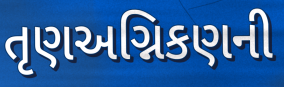
તૃણઅગ્નિકણની